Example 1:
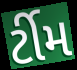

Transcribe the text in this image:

ર્ટીમ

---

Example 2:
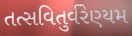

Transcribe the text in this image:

તત્સવિતુર્વરેણ્યમ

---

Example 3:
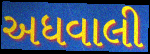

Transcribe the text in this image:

અધવાલી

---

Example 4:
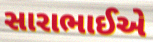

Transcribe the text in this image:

સારાભાઈએ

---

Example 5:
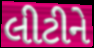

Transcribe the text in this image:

લીટીને